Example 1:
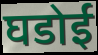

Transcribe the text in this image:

घडोई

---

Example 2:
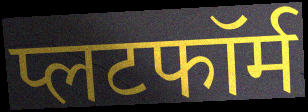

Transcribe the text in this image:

प्लटफॉर्म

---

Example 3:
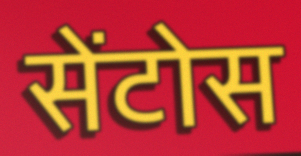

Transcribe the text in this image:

सेंटोस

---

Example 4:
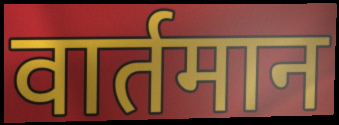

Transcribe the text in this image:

वार्तमान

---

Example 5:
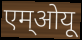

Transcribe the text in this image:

एम्ओयू